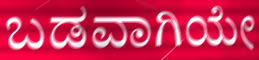
ಬಡವಾಗಿಯೇ